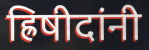
ह्रिषीदांनी